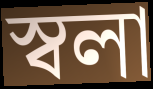
স্বলা